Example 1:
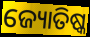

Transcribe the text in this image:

ଜ୍ୟୋତିଷ୍କ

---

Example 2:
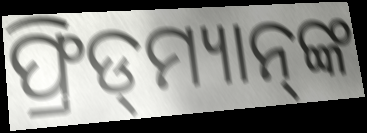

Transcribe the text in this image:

ଫ୍ରିଡ୍‌ମ୍ୟାନ୍‌ଙ୍କ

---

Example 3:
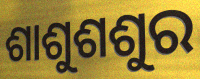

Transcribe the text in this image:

ଶାଶୁଶଶୁର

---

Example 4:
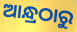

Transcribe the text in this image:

ଆନ୍ଧ୍ରଠାରୁ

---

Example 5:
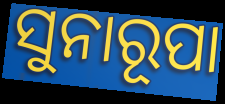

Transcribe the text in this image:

ସୁନାରୂପା